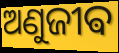
ଅଣୁଜୀଵ